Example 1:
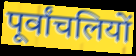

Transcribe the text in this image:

पूर्वांचलियों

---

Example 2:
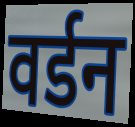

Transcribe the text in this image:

वर्डन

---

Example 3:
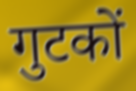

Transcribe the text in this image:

गुटकों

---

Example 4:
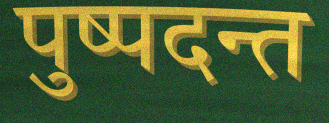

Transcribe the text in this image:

पुष्पदन्त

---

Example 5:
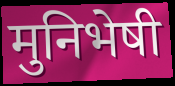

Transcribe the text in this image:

मुनिभेषी